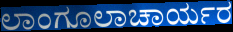
ಲಾಂಗೂಲಾಚಾರ್ಯರ